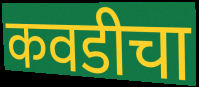
कवडीचा